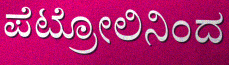
ಪೆಟ್ರೋಲಿನಿಂದ